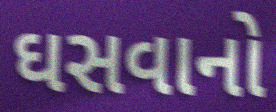
ઘસવાનો